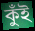
কুঁই